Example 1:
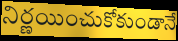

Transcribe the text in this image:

నిర్ణయించుకోకుండానే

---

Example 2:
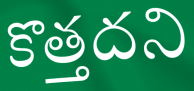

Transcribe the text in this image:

కొత్తదని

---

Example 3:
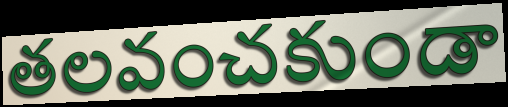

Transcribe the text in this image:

తలవంచకుండా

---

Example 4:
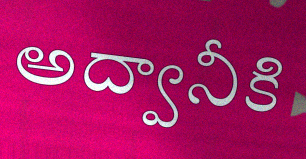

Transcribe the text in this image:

అద్వానీకి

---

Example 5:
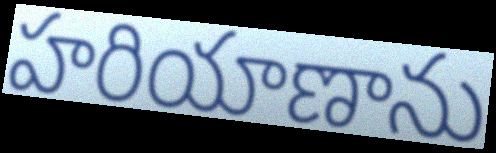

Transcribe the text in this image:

హరియాణాను